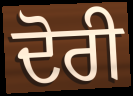
ਦੋਰੀ